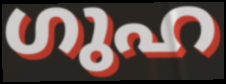
ഗുഹ